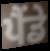
ਪੈਂਡੇ